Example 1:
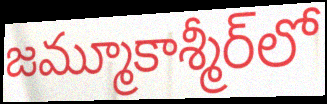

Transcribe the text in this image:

జమ్మూకాశ్మీర్‌లో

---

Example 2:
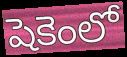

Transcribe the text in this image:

షెకెంలో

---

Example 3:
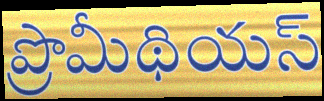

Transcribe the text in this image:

ప్రొమీథియస్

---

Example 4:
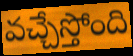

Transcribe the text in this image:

వచ్చేస్తోంది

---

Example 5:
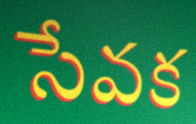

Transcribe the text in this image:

సేవక